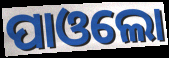
ପାଓଲୋ